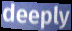
deeply